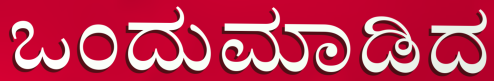
ಒಂದುಮಾಡಿದ